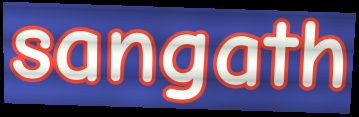
sangath